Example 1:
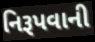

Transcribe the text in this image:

નિરૂપવાની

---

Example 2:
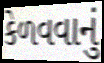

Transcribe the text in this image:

કેળવવાનું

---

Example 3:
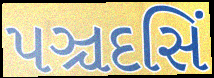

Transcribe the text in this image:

પઞ્ચદસિં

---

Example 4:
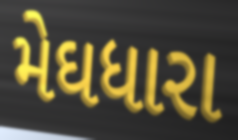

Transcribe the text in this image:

મેઘધારા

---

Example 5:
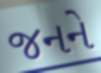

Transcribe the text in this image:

જનને